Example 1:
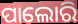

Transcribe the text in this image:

ପାଲୋରି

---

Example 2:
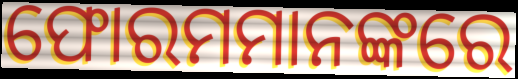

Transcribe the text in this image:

ଫୋରମମାନଙ୍କରେ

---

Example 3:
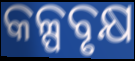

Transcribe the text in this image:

କଳ୍ପବୃକ୍ଷ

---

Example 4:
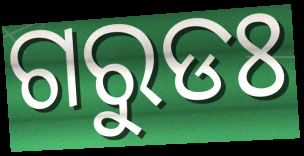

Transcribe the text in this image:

ଗରୁଡଃ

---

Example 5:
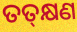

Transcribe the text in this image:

ତତ୍‌କ୍ଷଣ